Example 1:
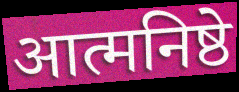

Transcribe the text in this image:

आत्मनिष्ठे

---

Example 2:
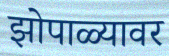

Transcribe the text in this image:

झोपाळ्यावर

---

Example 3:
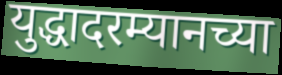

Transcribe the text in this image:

युद्धादरम्यानच्या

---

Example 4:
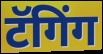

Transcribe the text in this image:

टॅगिंग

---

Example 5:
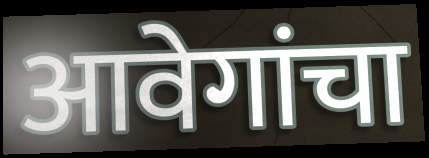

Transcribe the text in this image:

आवेगांचा